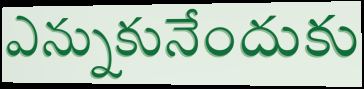
ఎన్నుకునేందుకు